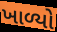
ખાળ્યો